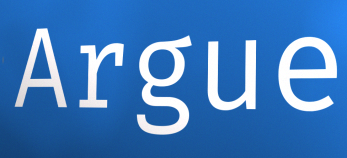
Argue